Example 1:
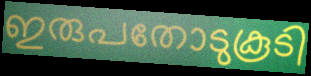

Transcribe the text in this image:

ഇരുപതോടുകൂടി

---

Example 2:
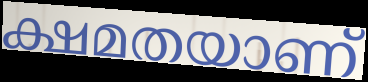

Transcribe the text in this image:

ക്ഷമതയാണ്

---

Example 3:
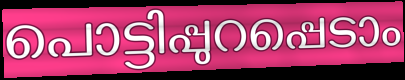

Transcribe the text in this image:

പൊട്ടിപ്പുറപ്പെടാം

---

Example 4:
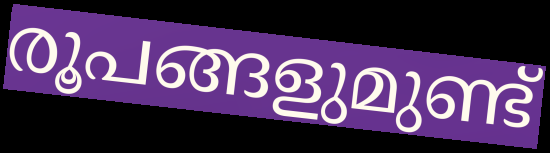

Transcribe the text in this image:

രൂപങ്ങളുമുണ്ട്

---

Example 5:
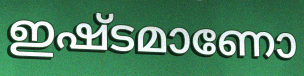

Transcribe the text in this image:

ഇഷ്ടമാണോ